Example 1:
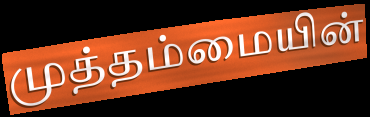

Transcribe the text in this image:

முத்தம்மையின்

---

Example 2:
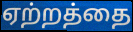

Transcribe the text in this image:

ஏற்றத்தை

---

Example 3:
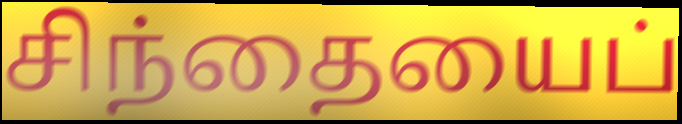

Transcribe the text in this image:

சிந்தையைப்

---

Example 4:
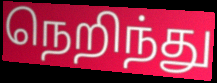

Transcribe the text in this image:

நெறிந்து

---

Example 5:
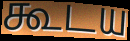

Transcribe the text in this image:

கூடய